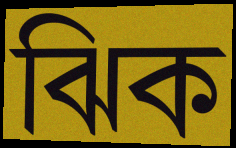
ঝিক